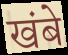
खंबे